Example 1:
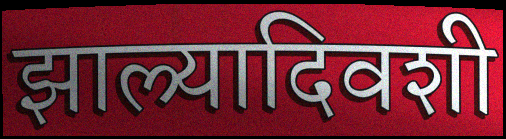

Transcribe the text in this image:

झाल्यादिवशी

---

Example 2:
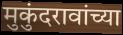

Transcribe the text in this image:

मुकुंदरावांच्या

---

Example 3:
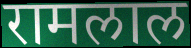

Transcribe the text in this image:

रामलाल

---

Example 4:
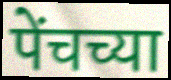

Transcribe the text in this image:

पेंचच्या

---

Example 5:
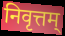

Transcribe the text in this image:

निवृत्तम्